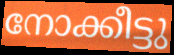
നോക്കീട്ടു